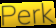
Perk